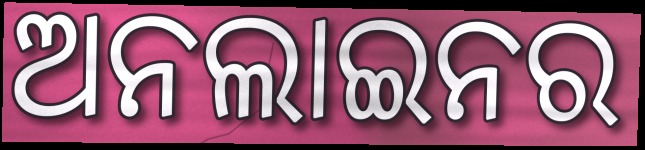
ଅନଲାଇନର